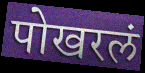
पोखरलं